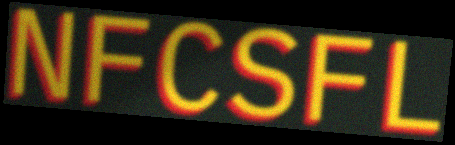
NFCSFL